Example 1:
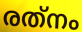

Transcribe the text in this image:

രത്‌നം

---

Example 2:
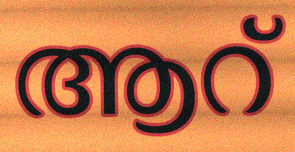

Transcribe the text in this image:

ആറ്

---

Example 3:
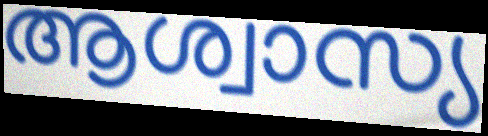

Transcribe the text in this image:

ആശ്വാസ്യ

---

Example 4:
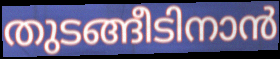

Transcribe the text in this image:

തുടങ്ങീടിനാൻ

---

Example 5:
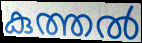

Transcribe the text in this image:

കുത്തൽ